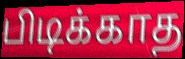
பிடிக்காத